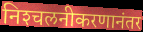
निश्चलनीकरणानंतर